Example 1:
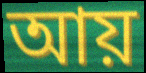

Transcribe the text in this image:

আয়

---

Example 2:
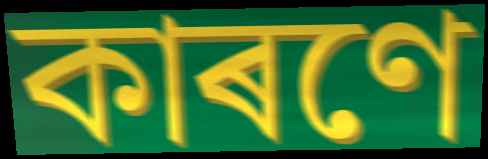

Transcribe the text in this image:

কাৰণে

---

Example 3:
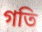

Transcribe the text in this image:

গতি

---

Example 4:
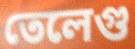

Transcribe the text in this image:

তেলেগু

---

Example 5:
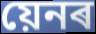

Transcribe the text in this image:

য়েনৰ